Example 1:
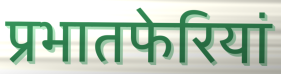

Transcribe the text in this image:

प्रभातफेरियां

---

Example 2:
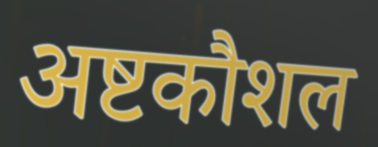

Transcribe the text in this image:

अष्टकौशल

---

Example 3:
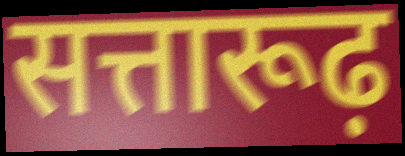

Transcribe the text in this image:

सत्तारूढ़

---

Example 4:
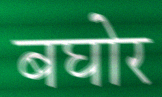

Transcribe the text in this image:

बघोर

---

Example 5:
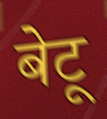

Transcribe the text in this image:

बेटू